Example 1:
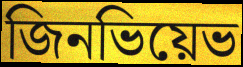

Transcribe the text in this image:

জিনভিয়েভ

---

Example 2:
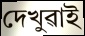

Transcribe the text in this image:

দেখুৱাই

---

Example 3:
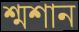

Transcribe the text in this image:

শ্মশান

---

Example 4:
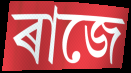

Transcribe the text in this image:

ৰাজে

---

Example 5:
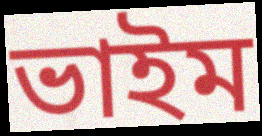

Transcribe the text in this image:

ভাইম